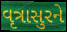
વૃત્રાસુરને